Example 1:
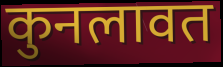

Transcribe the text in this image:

कुनलावत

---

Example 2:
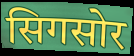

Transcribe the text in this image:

सिगसोर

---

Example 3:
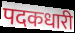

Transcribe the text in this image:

पदकधारी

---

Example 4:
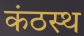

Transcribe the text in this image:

कंठस्थ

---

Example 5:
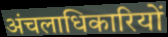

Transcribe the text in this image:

अंचलाधिकारियों